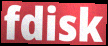
fdisk